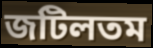
জটিলতম